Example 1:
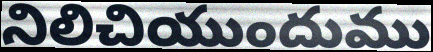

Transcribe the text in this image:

నిలిచియుందుము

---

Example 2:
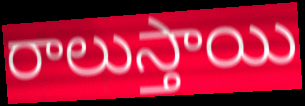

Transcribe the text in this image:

రాలుస్తాయి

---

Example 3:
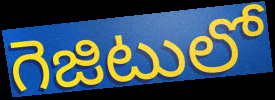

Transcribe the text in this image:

గెజిటులో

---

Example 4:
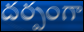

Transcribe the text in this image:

దర్పంగా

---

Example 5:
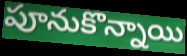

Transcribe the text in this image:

పూనుకొన్నాయి